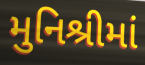
મુનિશ્રીમાં